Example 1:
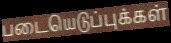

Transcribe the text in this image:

படையெடுப்புக்கள்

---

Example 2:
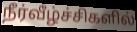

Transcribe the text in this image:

நீர்வீழ்ச்சிகளில்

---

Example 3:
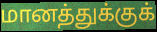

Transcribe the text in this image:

மானத்துக்குக்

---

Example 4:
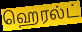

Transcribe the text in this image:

ஹெரல்ட்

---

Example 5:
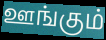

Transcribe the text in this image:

ஊங்கும்